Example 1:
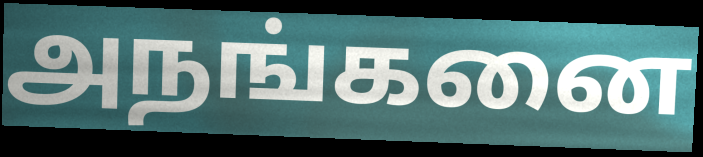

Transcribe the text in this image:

அநங்கனை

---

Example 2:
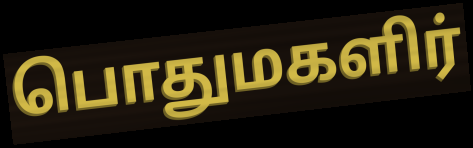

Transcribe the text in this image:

பொதுமகளிர்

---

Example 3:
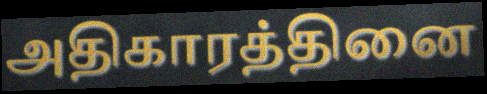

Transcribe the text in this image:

அதிகாரத்தினை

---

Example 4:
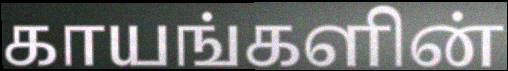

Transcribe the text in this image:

காயங்களின்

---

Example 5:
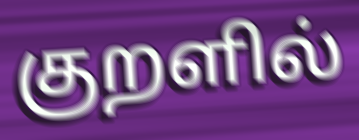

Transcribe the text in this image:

குறளில்